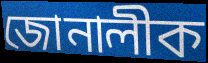
জোনালীক